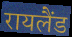
रायलैंड